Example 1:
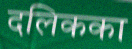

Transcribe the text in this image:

दलिकका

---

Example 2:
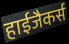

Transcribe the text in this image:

हाईजैकर्स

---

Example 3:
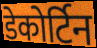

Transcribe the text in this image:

डेकोर्टिन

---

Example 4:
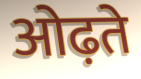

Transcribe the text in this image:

ओढ़ते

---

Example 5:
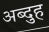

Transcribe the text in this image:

अब्दुह